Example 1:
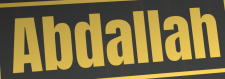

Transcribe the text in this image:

Abdallah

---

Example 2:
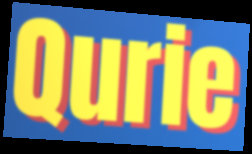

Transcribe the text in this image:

Qurie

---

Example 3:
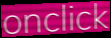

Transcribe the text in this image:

onclick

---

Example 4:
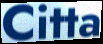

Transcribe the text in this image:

Citta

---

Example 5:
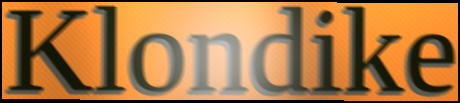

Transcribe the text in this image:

Klondike